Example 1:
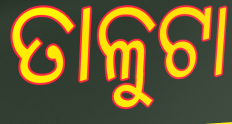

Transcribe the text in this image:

ତାଳୁଟା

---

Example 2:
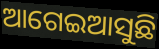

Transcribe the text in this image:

ଆଗେଇଆସୁଛି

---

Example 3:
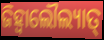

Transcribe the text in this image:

ଜିହ୍ଵାଲୌଲ୍ୟାତ୍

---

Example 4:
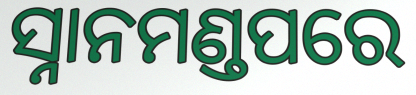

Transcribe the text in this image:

ସ୍ନାନମଣ୍ଡପରେ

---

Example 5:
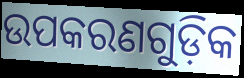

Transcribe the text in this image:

ଉପକରଣଗୁଡ଼ିକ